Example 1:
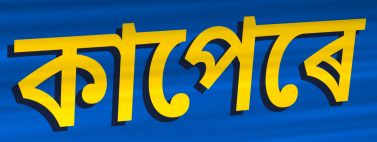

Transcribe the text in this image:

কাপেৰে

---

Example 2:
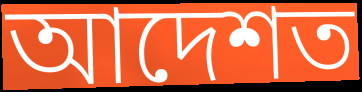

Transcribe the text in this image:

আদেশত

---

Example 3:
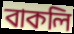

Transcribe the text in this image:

বাকলি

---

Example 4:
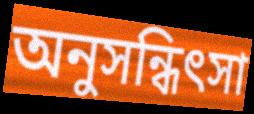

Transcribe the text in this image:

অনুসন্ধিৎসা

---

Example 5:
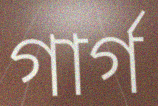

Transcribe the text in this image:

গাৰ্গ